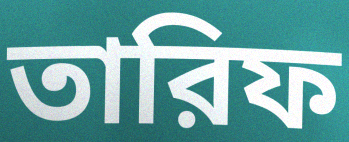
তারিফ